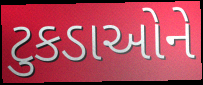
ટુકડાઓને